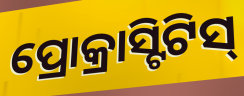
ପ୍ରୋକ୍ରାସ୍ଟିଟିସ୍